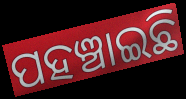
ପହଞ୍ଚାଇଛି